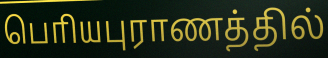
பெரியபுராணத்தில்